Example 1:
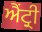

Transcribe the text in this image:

ਐਂਟ੍ਰੀ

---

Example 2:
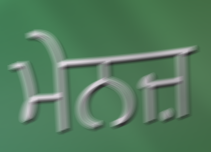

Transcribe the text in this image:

ਮੇਨਜ਼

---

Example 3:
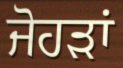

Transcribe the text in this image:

ਜੋਹੜਾਂ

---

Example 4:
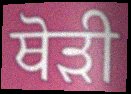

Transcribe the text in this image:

ਥੋੜੀ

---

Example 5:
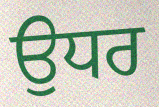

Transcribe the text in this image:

ਉਧਰ